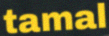
tamal